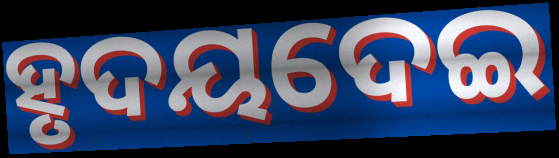
ହୃଦୟଦେଇ